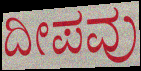
ದೀಪವು